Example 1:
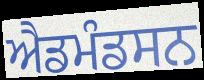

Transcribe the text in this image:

ਐਡਮੰਡਸਨ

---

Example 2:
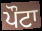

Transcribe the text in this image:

ਪੌਟਾ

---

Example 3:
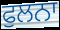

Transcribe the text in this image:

ਫੁਲਨਾ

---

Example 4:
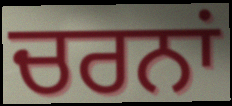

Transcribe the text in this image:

ਚਰਨਾਂ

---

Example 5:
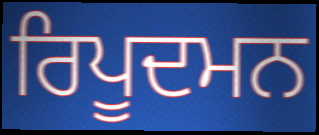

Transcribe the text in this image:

ਰਿਪੂਦਮਨ